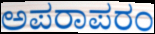
ಅಪರಾಪರಂ